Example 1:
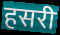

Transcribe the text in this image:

हसरी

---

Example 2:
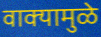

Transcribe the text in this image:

वाक्यामुळे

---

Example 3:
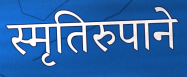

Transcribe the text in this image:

स्मृतिरुपाने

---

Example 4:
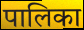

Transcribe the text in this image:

पालिका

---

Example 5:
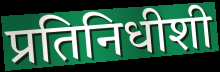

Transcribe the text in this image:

प्रतिनिधीशी